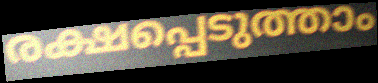
രക്ഷപ്പെടുത്താം